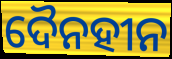
ଦୈନହୀନ